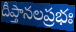
దీప్తానలప్రభః